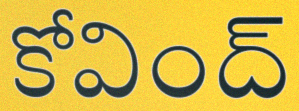
కోవింద్